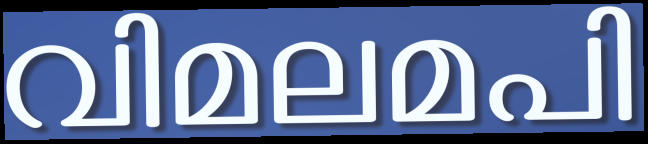
വിമലമപി